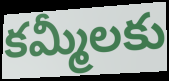
కమ్మీలకు